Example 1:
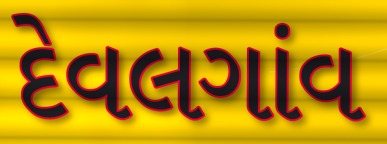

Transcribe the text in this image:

દેવલગાંવ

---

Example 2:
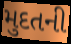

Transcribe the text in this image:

મુદતની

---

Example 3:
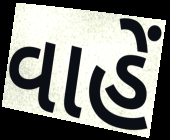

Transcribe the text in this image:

વાહેં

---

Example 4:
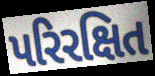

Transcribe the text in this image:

પરિરક્ષિત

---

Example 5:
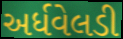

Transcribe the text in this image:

અર્ધવેલડી